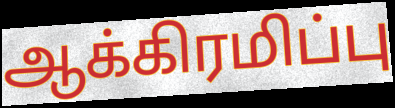
ஆக்கிரமிப்பு